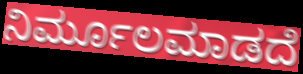
ನಿರ್ಮೂಲಮಾಡದೆ